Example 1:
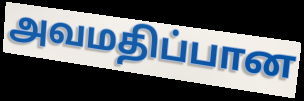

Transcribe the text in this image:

அவமதிப்பான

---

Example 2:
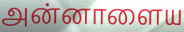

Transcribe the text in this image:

அன்னாளைய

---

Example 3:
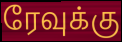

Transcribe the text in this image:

ரேவுக்கு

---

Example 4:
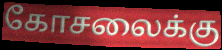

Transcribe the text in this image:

கோசலைக்கு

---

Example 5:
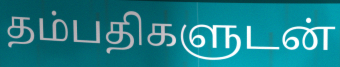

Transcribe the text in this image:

தம்பதிகளுடன்